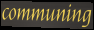
communing